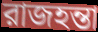
রাজহন্তা